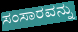
ಸಂಸಾರವನ್ನು